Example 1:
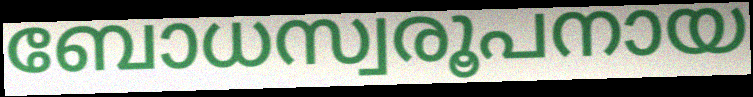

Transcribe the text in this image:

ബോധസ്വരൂപനായ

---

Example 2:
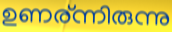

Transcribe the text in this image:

ഉണര്ന്നിരുന്നു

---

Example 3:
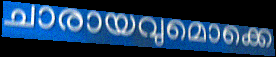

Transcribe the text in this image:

ചാരായവുമൊക്കെ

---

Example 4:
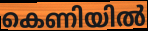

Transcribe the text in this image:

കെണിയിൽ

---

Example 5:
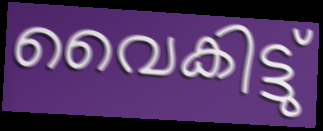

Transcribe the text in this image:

വൈകിട്ടു്